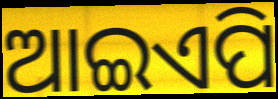
ଆଇଏପି